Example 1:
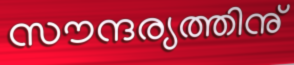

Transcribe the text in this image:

സൗന്ദര്യത്തിനു്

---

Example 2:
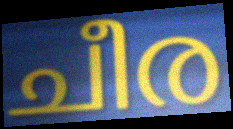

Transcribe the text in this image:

ചീര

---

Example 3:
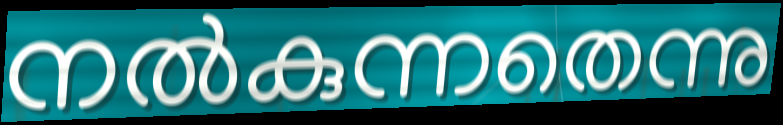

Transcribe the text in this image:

നൽകുന്നതെന്നു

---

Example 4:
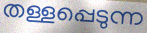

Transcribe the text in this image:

തള്ളപ്പെടുന്ന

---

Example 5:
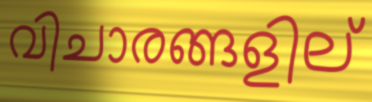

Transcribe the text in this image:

വിചാരങ്ങളില്